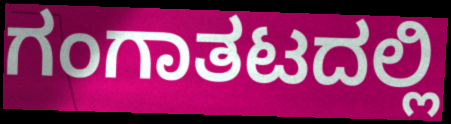
ಗಂಗಾತಟದಲ್ಲಿ